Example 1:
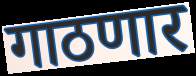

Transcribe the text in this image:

गाठणार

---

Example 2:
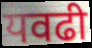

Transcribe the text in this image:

यवढी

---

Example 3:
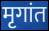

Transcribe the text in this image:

मृगांत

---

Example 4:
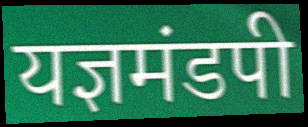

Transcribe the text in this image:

यज्ञमंडपी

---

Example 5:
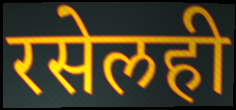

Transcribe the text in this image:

रसेलही